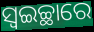
ସ୍ୱଇଚ୍ଛାରେ